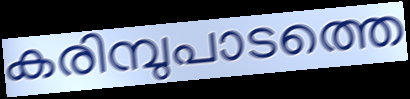
കരിമ്പുപാടത്തെ